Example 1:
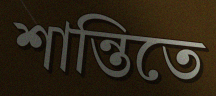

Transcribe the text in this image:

শান্তিতে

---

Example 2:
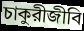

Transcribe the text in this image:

চাকুরীজীবি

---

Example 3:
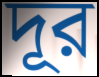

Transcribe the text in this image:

দূর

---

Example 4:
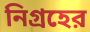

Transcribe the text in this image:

নিগ্রহের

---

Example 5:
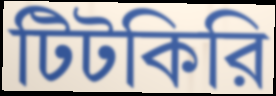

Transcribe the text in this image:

টিটকিরি